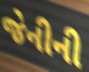
જેનીની